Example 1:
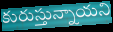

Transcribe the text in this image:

కురుస్తున్నాయని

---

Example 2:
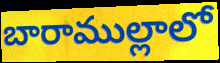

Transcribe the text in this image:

బారాముల్లాలో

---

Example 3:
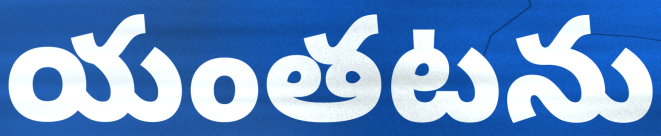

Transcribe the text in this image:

యంతటను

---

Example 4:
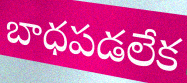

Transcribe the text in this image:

బాధపడలేక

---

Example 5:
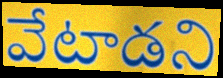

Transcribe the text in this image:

వేటాడని